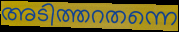
അടിത്തറതന്നെ